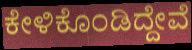
ಕೇಳಿಕೊಂಡಿದ್ದೇವೆ